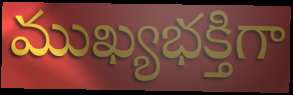
ముఖ్యభక్తిగా